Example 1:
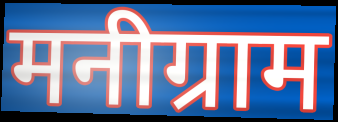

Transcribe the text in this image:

मनीग्राम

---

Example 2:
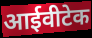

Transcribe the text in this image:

आईवीटेक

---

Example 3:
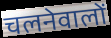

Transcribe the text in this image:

चलनेवालों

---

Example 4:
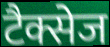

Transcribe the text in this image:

टैक्सेज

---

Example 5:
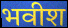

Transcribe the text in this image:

भवीश